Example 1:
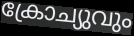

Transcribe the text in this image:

ക്രോച്യുവും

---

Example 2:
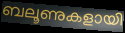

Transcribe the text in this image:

ബലൂണുകളായി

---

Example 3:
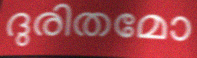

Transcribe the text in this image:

ദുരിതമോ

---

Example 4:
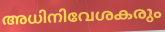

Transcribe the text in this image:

അധിനിവേശകരും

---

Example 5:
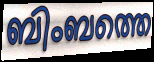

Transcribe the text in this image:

ബിംബത്തെ